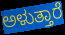
ಅಳುತ್ತಾರೆ